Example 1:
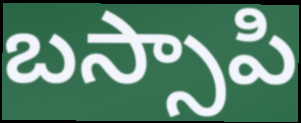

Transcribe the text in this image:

బస్సాపి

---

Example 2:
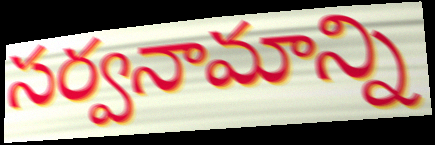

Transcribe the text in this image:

సర్వనామాన్ని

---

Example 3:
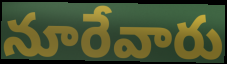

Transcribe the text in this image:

నూరేవారు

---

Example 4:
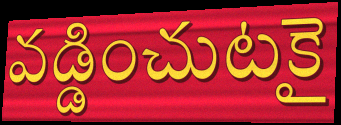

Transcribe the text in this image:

వడ్డించుటకై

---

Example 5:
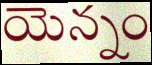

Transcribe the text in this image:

యెన్నం